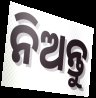
ନିଅନ୍ତୁ